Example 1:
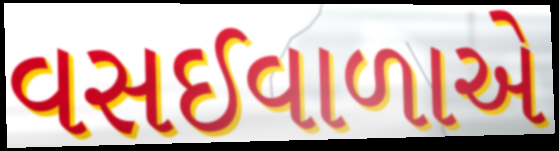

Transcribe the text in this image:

વસઈવાળાએ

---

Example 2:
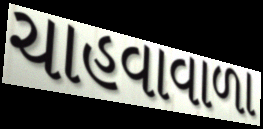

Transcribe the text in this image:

ચાહવાવાળા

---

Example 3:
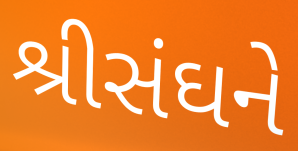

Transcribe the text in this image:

શ્રીસંઘને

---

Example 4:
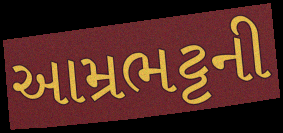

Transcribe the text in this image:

આમ્રભટ્ટની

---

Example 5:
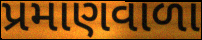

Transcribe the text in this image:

પ્રમાણવાળા